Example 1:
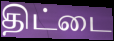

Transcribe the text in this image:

திட்டை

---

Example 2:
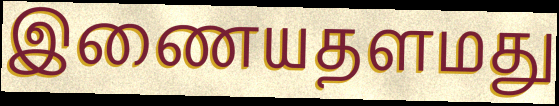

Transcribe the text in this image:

இணையதளமது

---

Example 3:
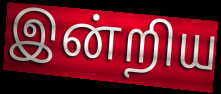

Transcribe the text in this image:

இன்றிய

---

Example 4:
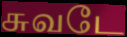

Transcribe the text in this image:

சுவடே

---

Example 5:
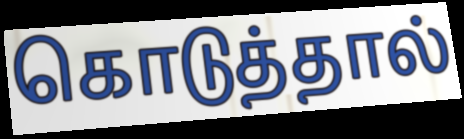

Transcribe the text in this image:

கொடுத்தால்